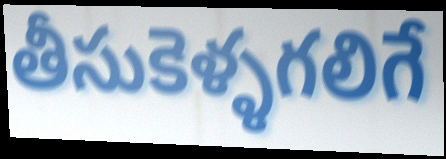
తీసుకెళ్ళగలిగే